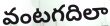
వంటగదిలా